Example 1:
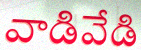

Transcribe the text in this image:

వాడివేడి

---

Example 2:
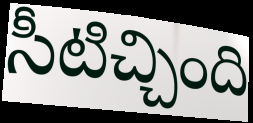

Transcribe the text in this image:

సీటిచ్చింది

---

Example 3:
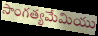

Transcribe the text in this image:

సాంగత్యమేమియు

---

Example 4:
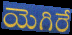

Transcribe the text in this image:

యెగిరే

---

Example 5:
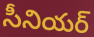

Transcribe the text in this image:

సీనియర్